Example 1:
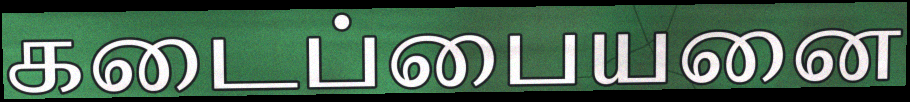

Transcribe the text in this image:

கடைப்பையனை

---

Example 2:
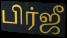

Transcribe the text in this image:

பிர்ஜீ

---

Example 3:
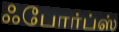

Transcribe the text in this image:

ஃபோர்ப்ஸ்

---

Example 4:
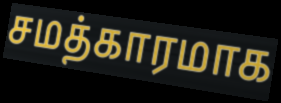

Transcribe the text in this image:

சமத்காரமாக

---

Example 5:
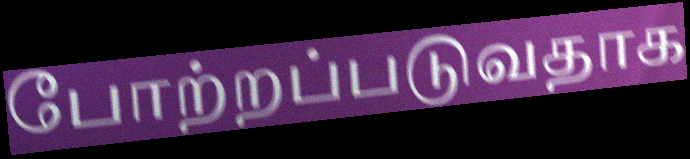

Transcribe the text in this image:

போற்றப்படுவதாக